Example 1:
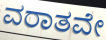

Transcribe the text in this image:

ವರಾತವೇ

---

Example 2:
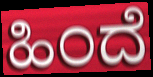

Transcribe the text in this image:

ಹಿಂದೆ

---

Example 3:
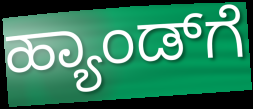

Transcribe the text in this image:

ಹ್ಯಾಂಡ್‌ಗೆ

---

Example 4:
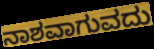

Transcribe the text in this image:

ನಾಶವಾಗುವದು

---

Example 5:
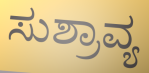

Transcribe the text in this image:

ಸುಶ್ರಾವ್ಯ